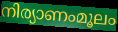
നിര്യാണംമൂലം